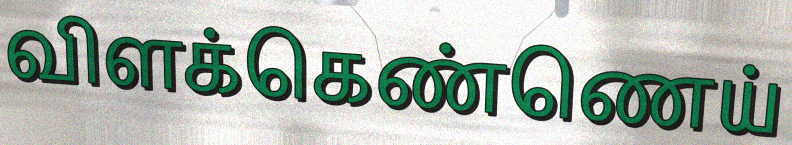
விளக்கெண்ணெய்